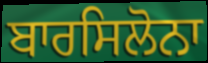
ਬਾਰਸਿਲੋਨਾ